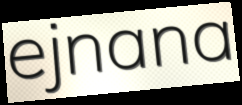
ejnana